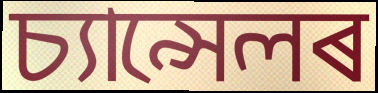
চ্যান্সেলৰ